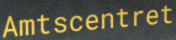
Amtscentret